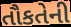
તૌકતેની